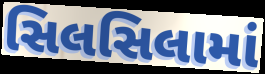
સિલસિલામાં